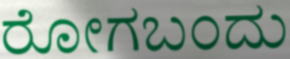
ರೋಗಬಂದು